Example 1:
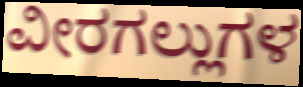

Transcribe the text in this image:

ವೀರಗಲ್ಲುಗಳ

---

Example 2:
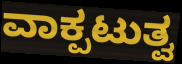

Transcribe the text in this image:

ವಾಕ್ಪಟುತ್ವ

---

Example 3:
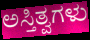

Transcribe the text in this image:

ಅಸ್ತಿತ್ವಗಳು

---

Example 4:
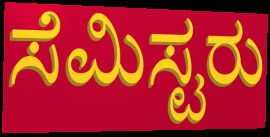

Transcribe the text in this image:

ಸೆಮಿಸ್ಟರು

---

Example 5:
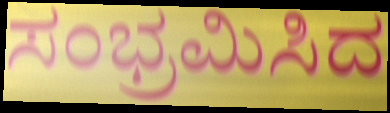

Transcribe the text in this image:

ಸಂಭ್ರಮಿಸಿದ